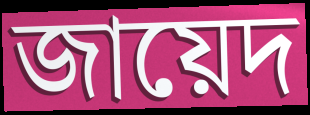
জায়েদ